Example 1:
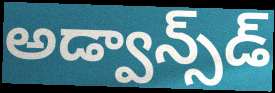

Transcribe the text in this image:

అడ్వాన్స్‌డ్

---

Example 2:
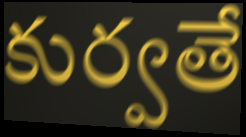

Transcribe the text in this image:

కుర్వతే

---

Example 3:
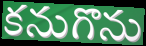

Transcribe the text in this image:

కనుగొను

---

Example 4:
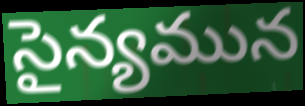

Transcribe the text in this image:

సైన్యమున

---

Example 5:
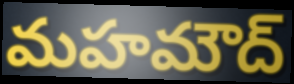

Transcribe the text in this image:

మహమౌద్